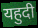
यहुदी